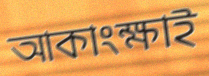
আকাংক্ষাই